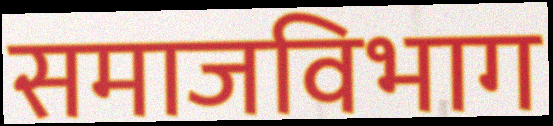
समाजविभाग